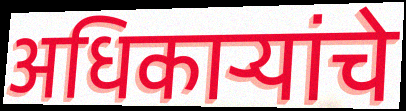
अधिकाऱ्यांचे